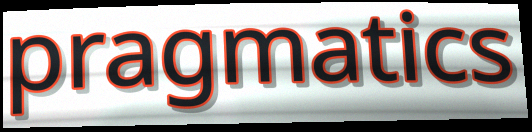
pragmatics